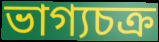
ভাগ্যচক্র